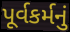
પૂર્વકર્મનું